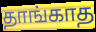
தாங்காத